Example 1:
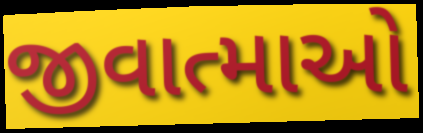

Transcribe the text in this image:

જીવાત્માઓ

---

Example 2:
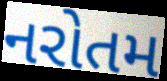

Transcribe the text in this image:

નરોતમ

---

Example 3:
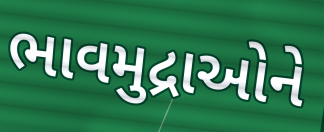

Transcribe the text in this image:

ભાવમુદ્રાઓને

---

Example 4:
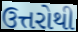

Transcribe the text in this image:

ઉત્તરોથી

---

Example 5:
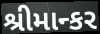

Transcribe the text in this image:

શ્રીમાન્કર